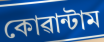
কোৱান্টাম